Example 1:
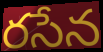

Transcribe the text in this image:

రసేన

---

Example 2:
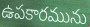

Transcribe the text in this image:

ఉపకారమును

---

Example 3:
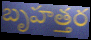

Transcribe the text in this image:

బృహత్తర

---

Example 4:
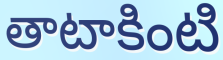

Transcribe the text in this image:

తాటాకింటి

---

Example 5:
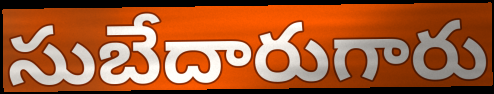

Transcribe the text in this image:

సుబేదారుగారు